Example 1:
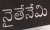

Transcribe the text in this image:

నైతేనేమి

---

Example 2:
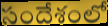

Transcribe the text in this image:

సందేశంలో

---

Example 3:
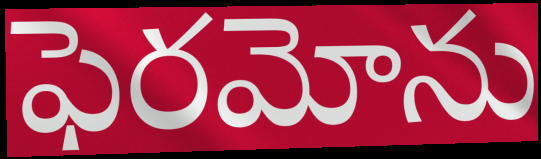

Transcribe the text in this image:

ఫెరమోను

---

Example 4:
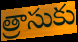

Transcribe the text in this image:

త్రాసుకు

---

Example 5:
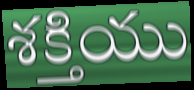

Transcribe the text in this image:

శక్తియు